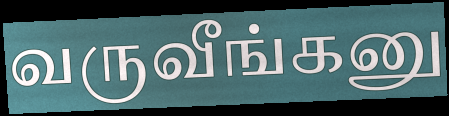
வருவீங்கனு